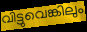
വിട്ടുവെങ്കിലും